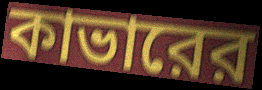
কাভারের